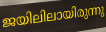
ജയിലിലായിരുന്നു